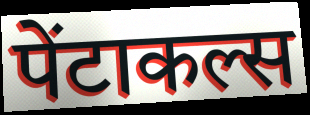
पेंटाकल्स